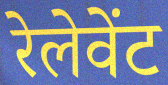
रेलेवेंट